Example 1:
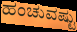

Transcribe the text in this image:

ಹಂಚುವಷ್ಟು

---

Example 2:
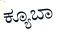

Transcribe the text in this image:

ಕ್ಯೂಬಾ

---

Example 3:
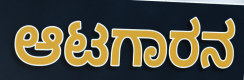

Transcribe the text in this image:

ಆಟಗಾರನ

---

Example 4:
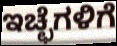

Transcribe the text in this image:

ಇಚ್ಛೆಗಳಿಗೆ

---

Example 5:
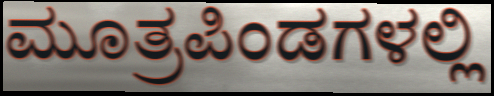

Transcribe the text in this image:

ಮೂತ್ರಪಿಂಡಗಳಲ್ಲಿ